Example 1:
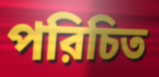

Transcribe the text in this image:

পরিচিত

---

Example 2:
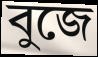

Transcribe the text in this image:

বুজে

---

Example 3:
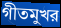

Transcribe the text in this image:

গীতমুখর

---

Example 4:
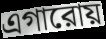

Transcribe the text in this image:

এগারোয়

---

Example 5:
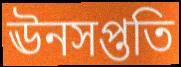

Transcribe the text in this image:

ঊনসপ্ততি